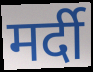
मर्दी